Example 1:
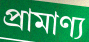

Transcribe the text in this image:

প্ৰামাণ্য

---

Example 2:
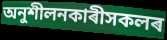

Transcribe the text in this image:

অনুশীলনকাৰীসকলৰ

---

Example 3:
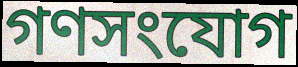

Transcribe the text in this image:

গণসংযোগ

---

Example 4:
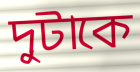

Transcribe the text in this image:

দুটাকে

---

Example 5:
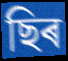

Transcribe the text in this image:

ছিৰ